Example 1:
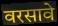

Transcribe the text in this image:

वरसावे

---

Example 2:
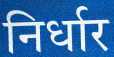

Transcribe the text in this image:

निर्धार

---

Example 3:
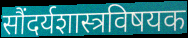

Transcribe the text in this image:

सौंदर्यशास्त्रविषयक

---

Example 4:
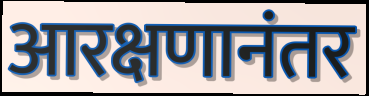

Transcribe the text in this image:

आरक्षणानंतर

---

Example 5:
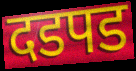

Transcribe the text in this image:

दडपड